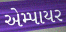
એમ્પાયર